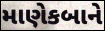
માણેકબાને